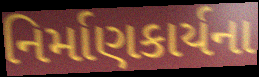
નિર્માણકાર્યના